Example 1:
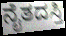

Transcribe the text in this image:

ನೈತದಸ್ತಿ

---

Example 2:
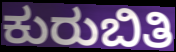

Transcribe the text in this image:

ಕುರುಬಿತಿ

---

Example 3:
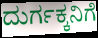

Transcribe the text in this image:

ದುರ್ಗಕ್ಕನಿಗೆ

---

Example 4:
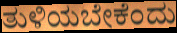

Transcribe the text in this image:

ತುಳಿಯಬೇಕೆಂದು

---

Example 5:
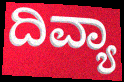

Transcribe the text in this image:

ದಿವ್ಯಾ